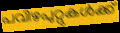
പവിഴപുറ്റുകൾക്ക്